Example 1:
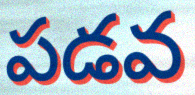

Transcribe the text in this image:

పడవ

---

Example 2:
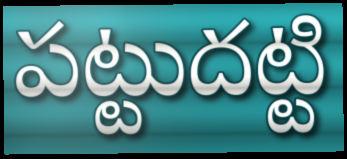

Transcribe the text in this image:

పట్టుదట్టి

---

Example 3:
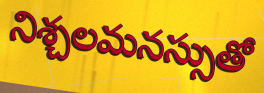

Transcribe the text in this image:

నిశ్చలమనస్సుతో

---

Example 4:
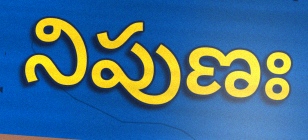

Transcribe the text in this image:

నిపుణః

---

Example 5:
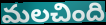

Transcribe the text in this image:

మలచింది